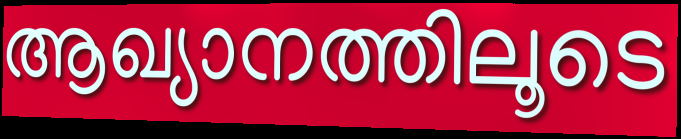
ആഖ്യാനത്തിലൂടെ